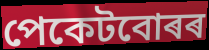
পেকেটবোৰৰ